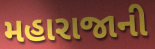
મહારાજાની